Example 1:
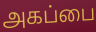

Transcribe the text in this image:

அகப்பை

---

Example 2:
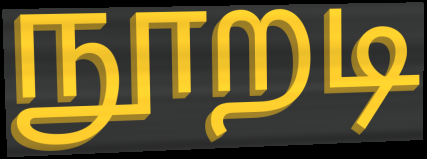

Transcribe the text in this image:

நூறடி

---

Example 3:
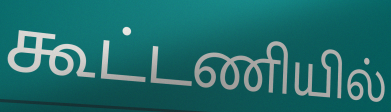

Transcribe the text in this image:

கூட்டணியில்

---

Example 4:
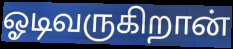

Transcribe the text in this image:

ஓடிவருகிறான்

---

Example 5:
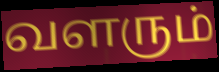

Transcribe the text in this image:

வளரும்